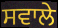
ਸਵਾਲੇ